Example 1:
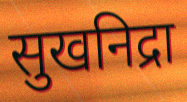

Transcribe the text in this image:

सुखनिद्रा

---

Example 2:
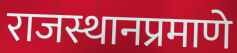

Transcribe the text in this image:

राजस्थानप्रमाणे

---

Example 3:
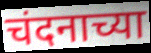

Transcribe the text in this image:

चंदनाच्या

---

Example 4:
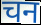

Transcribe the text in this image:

चन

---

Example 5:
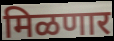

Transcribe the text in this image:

मिळणार